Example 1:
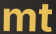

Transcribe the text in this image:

mt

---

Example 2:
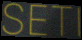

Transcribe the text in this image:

SETI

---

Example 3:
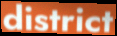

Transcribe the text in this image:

district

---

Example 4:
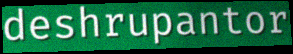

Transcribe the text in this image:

deshrupantor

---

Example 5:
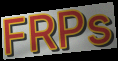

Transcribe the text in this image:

FRPs